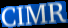
CIMR